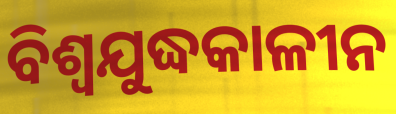
ବିଶ୍ୱଯୁଦ୍ଧକାଳୀନ